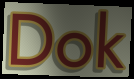
Dok